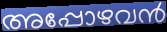
അപ്പോഴവൻ